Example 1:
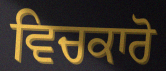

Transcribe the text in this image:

ਵਿਚਕਾਰੋ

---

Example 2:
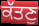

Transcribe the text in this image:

ਕੱਤਣੁ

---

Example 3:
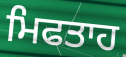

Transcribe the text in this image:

ਮਿਫਤਾਹ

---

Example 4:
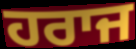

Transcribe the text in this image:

ਹਰਾਜ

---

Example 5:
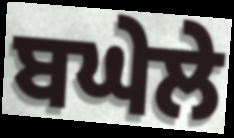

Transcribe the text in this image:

ਬਘੇਲੇ